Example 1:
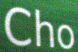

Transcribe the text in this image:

Cho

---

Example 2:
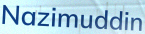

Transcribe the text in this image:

Nazimuddin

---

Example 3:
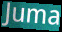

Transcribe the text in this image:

Juma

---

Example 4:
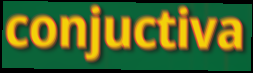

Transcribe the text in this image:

conjuctiva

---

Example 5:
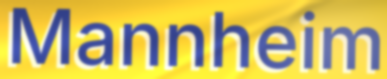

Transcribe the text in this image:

Mannheim